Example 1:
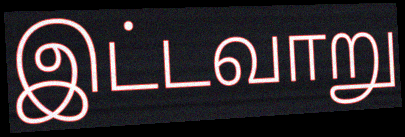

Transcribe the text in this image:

இட்டவாறு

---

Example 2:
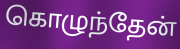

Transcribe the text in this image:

கொழுந்தேன்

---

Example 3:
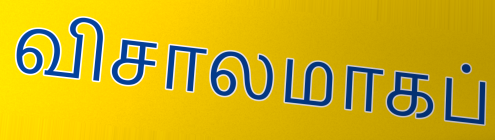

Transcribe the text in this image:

விசாலமாகப்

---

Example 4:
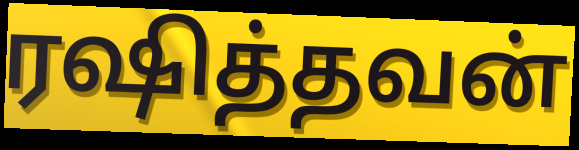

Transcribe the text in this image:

ரஷித்தவன்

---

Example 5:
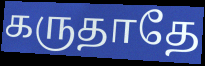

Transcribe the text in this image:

கருதாதே